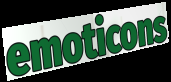
emoticons